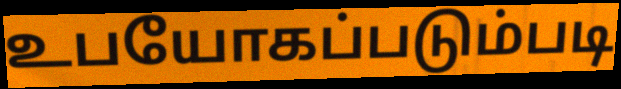
உபயோகப்படும்படி